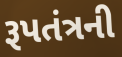
રૂપતંત્રની